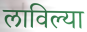
लाविल्या